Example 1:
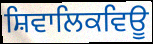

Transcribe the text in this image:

ਸ਼ਿਵਾਲਿਕਵਿਊ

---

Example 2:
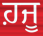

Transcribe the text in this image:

ਹ਼ਜੂ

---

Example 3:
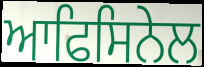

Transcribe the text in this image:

ਆਫਿਸਿਨੇਲ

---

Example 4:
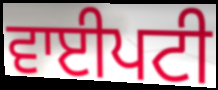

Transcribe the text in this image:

ਵਾਈਪਟੀ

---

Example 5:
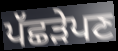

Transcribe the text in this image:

ਪੱਛੜੇਪਣ